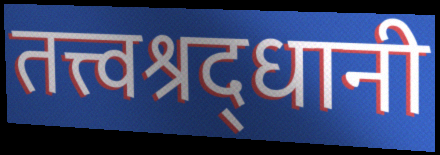
तत्त्वश्रद्धानी